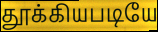
தூக்கியபடியே